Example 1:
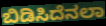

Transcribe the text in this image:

ಬಿಡಿಸಿದೆನಲಾ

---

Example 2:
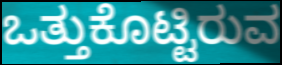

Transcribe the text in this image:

ಒತ್ತುಕೊಟ್ಟಿರುವ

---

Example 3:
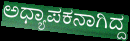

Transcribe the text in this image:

ಅಧ್ಯಾಪಕನಾಗಿದ್ದ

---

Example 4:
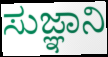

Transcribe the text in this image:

ಸುಜ್ಞಾನಿ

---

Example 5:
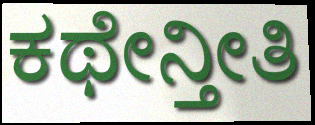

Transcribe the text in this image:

ಕಥೇನ್ತೀತಿ